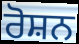
ਰੋਸ਼ਨ